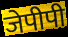
जेपीपी